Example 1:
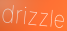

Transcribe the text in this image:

drizzle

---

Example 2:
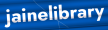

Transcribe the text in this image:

jainelibrary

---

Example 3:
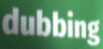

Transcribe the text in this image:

dubbing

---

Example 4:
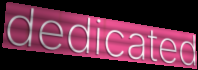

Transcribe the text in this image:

dedicated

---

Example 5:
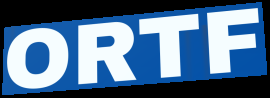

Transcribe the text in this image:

ORTF